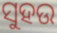
ସୁହଉ